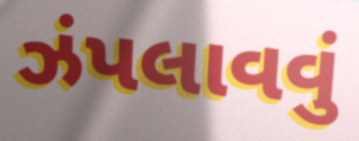
ઝંપલાવવું